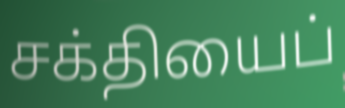
சக்தியைப்